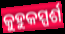
କୁହୁକସ୍ପର୍ଶ